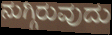
ನುಗ್ಗಿರುವುದು